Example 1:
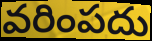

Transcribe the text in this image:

వరింపదు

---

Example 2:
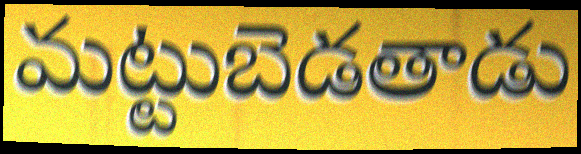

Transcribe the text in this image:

మట్టుబెడతాడు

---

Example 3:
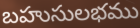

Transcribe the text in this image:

బహుసులభము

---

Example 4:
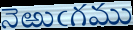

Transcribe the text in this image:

నెఱుఁగము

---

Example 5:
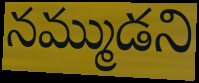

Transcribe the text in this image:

నమ్ముడని